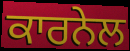
ਕਾਰਨੇਲ